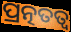
ପ୍ରତ୍ନତତ୍ୱ